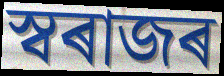
স্বৰাজৰ